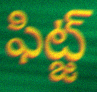
ఫిట్జ్